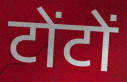
टोंटों